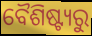
ବୈଶିଷ୍ଟ୍ୟରୁ